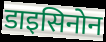
डाइसिनोन